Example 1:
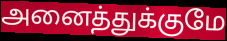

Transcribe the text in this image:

அனைத்துக்குமே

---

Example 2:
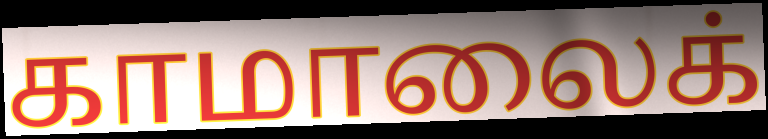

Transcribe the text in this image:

காமாலைக்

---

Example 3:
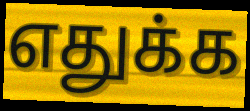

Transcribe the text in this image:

எதுக்க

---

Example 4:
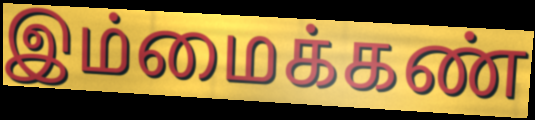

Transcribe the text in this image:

இம்மைக்கண்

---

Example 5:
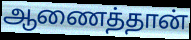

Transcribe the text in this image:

ஆணைத்தான்